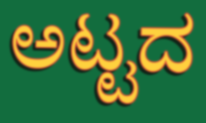
ಅಟ್ಟದ